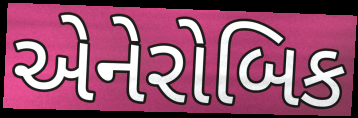
એનેરોબિક